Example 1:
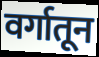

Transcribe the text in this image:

वर्गातून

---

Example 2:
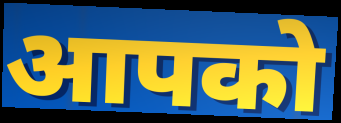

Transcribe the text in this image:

आपको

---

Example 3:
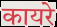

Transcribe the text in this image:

कायरे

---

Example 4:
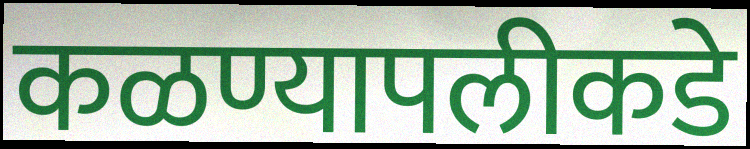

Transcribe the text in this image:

कळण्यापलीकडे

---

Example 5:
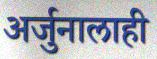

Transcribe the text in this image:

अर्जुनालाही